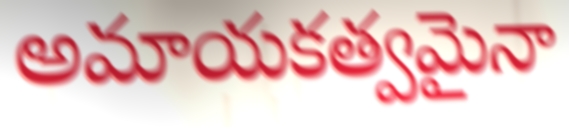
అమాయకత్వమైనా